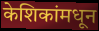
केशिकांमधून